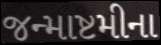
જન્માષ્ટમીના